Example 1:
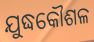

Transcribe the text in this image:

ଯୁଦ୍ଧକୌଶଳ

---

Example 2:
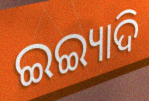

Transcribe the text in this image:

ଇଇ୍ୟାଦି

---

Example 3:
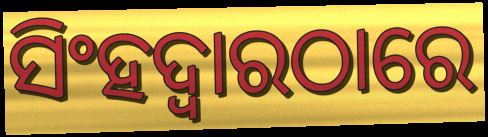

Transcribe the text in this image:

ସିଂହଦ୍ୱାରଠାରେ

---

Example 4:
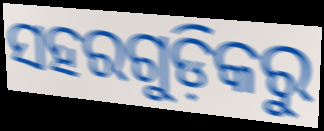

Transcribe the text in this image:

ସହରଗୁଡ଼ିକରୁ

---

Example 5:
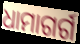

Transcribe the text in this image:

ଧାମାଗର୍ଗ